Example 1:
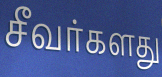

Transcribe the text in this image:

சீவர்களது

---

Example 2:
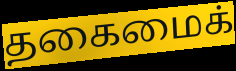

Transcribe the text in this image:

தகைமைக்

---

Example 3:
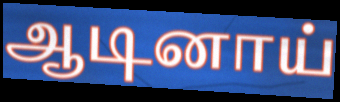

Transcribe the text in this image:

ஆடினாய்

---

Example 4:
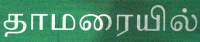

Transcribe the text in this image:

தாமரையில்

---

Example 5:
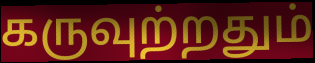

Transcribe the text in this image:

கருவுற்றதும்